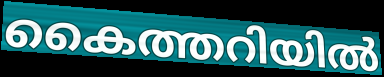
കൈത്തറിയിൽ